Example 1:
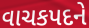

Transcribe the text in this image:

વાચકપદને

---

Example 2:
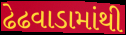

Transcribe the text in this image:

ઢેઢવાડામાંથી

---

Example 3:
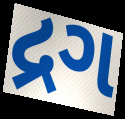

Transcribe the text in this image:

દ્રગ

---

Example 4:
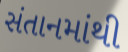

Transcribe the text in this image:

સંતાનમાંથી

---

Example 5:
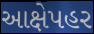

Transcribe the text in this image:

આક્ષેપહર